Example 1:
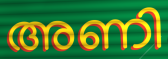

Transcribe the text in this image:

അണി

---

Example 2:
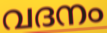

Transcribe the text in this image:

വദനം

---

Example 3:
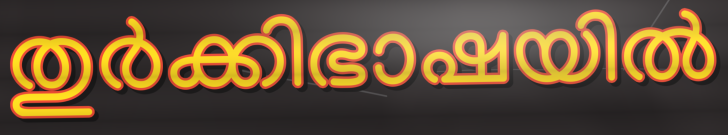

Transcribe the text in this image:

തുർക്കിഭാഷയിൽ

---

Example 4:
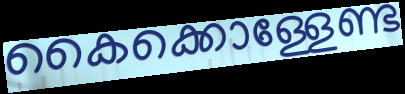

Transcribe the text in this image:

കൈക്കൊള്ളേണ്ട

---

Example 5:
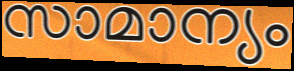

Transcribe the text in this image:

സാമാന്യം